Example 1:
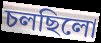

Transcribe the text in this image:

চলছিলো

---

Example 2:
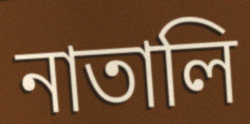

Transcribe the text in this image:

নাতালি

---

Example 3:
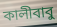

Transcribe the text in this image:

কালীবাবু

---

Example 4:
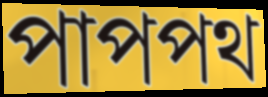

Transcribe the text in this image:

পাপপথ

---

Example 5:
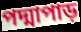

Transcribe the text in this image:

পদ্মাপাড়